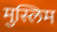
मुस्लिम